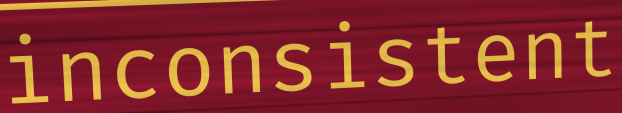
inconsistent